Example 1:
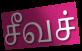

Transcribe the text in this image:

சீவச்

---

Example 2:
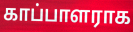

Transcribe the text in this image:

காப்பாளராக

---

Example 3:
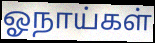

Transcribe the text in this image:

ஓநாய்கள்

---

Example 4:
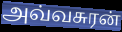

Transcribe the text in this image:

அவ்வசுரன்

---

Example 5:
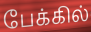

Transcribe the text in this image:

பேக்கில்